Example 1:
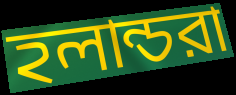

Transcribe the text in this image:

হলান্ডরা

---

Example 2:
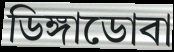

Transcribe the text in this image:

ডিঙ্গাডোবা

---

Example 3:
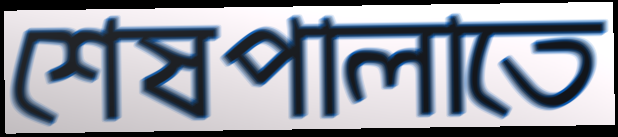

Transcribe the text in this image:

শেষপালাতে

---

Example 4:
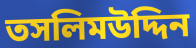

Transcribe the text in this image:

তসলিমউদ্দিন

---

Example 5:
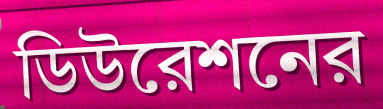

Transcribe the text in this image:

ডিউরেশনের